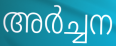
അർച്ചന